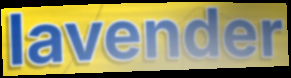
lavender